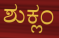
ಶುಕ್ಲಂ